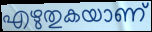
എഴുതുകയാണ്